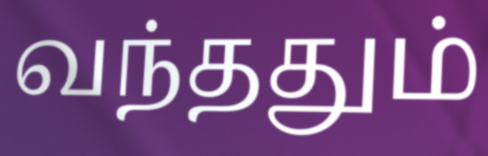
வந்ததும்